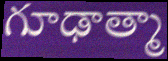
గూఢాత్మా